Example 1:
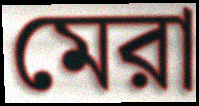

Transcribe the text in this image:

মেরা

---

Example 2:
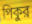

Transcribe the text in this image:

পিকুর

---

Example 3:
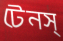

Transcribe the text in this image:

টেনস্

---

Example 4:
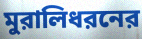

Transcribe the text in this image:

মুরালিধরনের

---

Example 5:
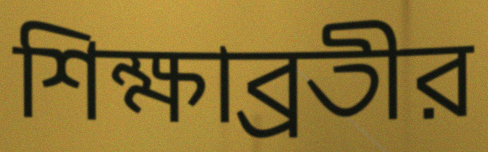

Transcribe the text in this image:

শিক্ষাব্রতীর